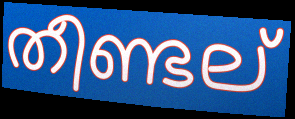
തീണ്ടല്